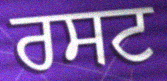
ਰਸਟ